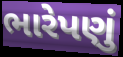
ભારેપણું